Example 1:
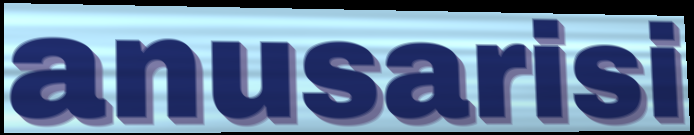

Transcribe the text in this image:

anusarisi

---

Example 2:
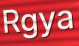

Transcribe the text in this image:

Rgya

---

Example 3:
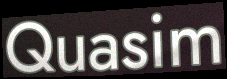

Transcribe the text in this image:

Quasim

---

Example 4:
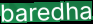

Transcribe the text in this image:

baredha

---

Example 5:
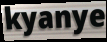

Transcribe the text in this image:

kyanye